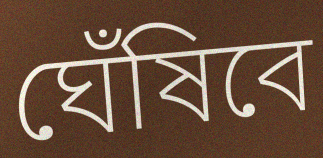
ঘেঁষিবে